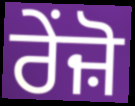
ਰੇਂਜ਼ੋ